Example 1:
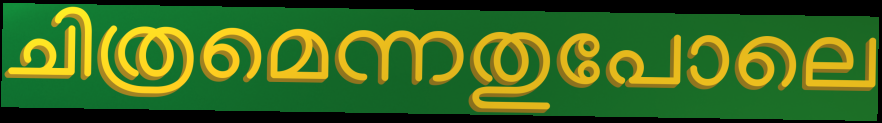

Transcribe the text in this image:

ചിത്രമെന്നതുപോലെ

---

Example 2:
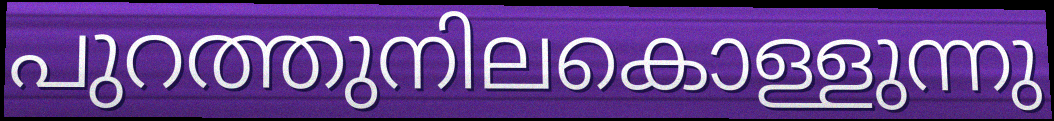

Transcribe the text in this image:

പുറത്തുനിലകൊള്ളുന്നു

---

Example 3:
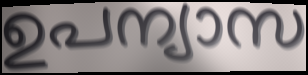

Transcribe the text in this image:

ഉപന്യാസ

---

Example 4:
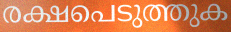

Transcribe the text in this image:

രക്ഷപെടുത്തുക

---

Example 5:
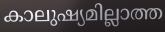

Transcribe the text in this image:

കാലുഷ്യമില്ലാത്ത